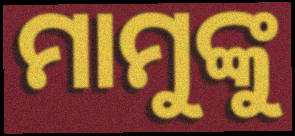
ମାମୁଙ୍କୁ